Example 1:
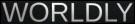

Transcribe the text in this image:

WORLDLY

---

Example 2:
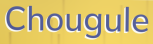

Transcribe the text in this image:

Chougule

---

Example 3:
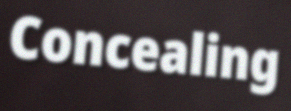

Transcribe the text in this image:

Concealing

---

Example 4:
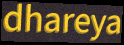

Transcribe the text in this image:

dhareya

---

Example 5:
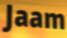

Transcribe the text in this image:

Jaam